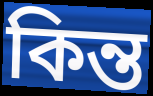
কিন্ত